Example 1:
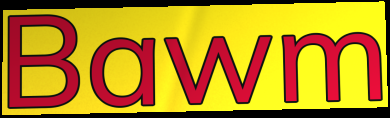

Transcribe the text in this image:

Bawm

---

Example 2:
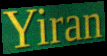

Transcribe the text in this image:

Yiran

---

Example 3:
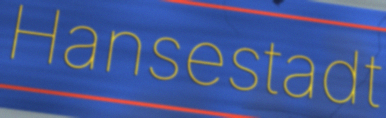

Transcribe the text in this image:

Hansestadt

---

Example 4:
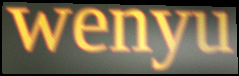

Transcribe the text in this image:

wenyu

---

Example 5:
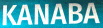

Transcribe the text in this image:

KANABA